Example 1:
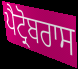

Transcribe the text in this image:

ਪੈਟ੍ਰੋਬਰਾਸ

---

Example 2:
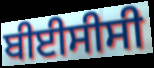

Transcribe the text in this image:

ਬੀਈਸੀਸੀ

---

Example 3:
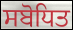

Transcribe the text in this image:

ਸਬੋਧਿਤ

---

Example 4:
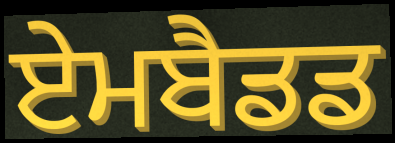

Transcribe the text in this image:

ਏਮਬੈਡਡ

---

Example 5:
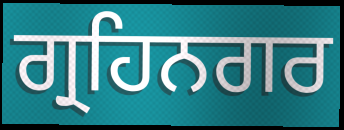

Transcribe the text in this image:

ਗ੍ਰਹਿਨਗਰ